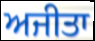
ਅਜੀਤਾ